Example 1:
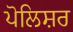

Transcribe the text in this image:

ਪੋਲਿਸ਼ਰ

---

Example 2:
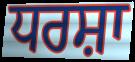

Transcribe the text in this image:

ਧਰਸ਼ਾ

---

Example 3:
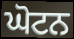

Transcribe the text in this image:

ਘੋਟਨ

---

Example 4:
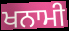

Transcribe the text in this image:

ਖਨਾਮੀ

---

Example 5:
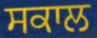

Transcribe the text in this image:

ਸਕਾਲ